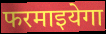
फरमाइयेगा